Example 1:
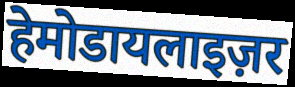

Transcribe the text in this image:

हेमोडायलाइज़र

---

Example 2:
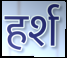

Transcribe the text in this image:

हर्श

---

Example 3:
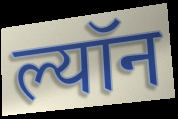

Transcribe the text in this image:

ल्यॉन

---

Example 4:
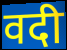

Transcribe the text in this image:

वदी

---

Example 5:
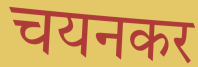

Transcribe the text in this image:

चयनकर